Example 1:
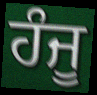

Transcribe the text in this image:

ਹੰਜੂ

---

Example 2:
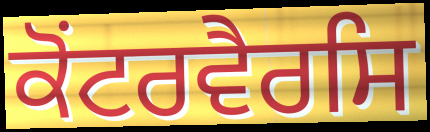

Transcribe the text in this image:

ਕੋਂਟਰਵੈਰਸਿ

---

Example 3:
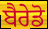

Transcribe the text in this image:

ਬੈਰੇਡੋ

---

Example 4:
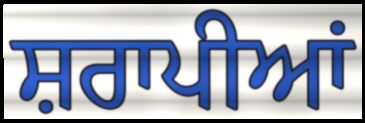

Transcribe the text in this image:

ਸ਼ਰਾਪੀਆਂ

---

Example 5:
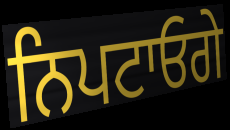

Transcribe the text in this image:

ਨਿਪਟਾਓਗੇ